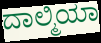
ದಾಲ್ಮಿಯಾ